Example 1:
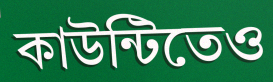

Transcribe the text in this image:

কাউন্টিতেও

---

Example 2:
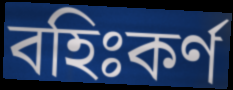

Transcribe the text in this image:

বহিঃকর্ণ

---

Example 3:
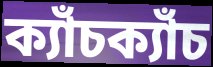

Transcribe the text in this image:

ক্যাঁচক্যাঁচ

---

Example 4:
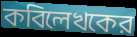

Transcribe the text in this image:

কবিলেখকের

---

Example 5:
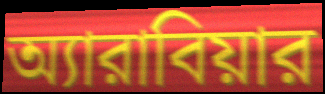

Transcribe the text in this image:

অ্যারাবিয়ার